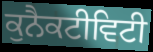
ਕੁਨੈਕਟੀਵਿਟੀ